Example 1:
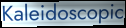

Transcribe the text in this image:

Kaleidoscopic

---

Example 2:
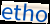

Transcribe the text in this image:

etho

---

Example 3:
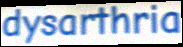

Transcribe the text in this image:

dysarthria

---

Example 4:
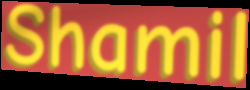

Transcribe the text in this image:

Shamil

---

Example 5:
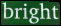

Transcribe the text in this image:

bright